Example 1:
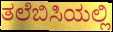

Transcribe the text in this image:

ತಲೆಬಿಸಿಯಲ್ಲಿ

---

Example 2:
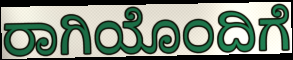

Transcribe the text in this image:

ರಾಗಿಯೊಂದಿಗೆ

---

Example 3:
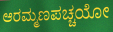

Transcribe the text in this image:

ಆರಮ್ಮಣಪಚ್ಚಯೋ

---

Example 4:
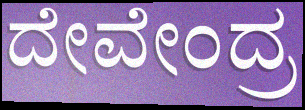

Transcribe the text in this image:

ದೇವೇಂದ್ರ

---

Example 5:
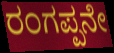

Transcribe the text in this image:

ರಂಗಪ್ಪನೇ